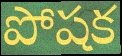
పోషక